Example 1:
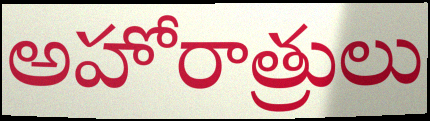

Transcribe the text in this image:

అహోరాత్రులు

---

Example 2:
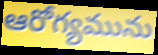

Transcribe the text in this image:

ఆరోగ్యమును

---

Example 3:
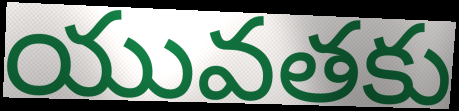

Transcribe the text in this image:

యువతకు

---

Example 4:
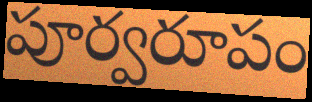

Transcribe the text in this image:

పూర్వరూపం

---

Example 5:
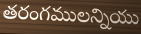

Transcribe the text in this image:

తరంగములన్నియు